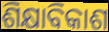
ଶିକ୍ଷାବିକାଶ